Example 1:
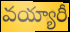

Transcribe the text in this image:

వయ్యారీ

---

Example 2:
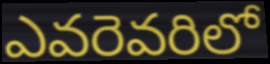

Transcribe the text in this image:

ఎవరెవరిలో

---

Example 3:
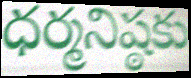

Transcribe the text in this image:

ధర్మనిష్ఠకు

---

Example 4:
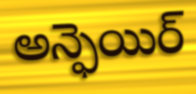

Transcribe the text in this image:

అన్ఫెయిర్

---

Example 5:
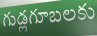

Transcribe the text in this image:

గుడ్లగూబలకు